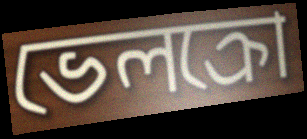
ভেলক্রো